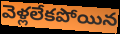
వెళ్లలేకపోయిన